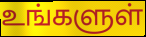
உங்களுள்